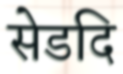
सेडदि